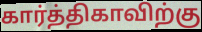
கார்த்திகாவிற்கு